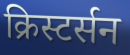
क्रिस्टर्सन